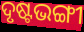
ଦୃଷ୍ଟଭଙ୍ଗୀ